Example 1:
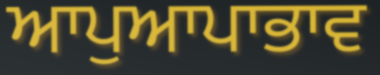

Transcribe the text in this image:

ਆਪੁਆਪਾਭਾਵ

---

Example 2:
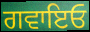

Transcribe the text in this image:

ਗਵਾਇਓ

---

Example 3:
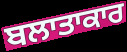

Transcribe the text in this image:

ਬਲਾਤਾਕਾਰ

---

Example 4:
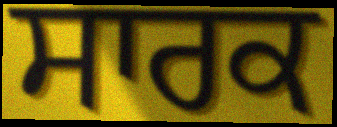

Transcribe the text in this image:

ਸਾਰਕ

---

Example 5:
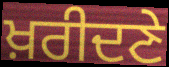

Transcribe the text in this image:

ਖ਼ਰੀਦਣੇ